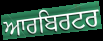
ਆਰਬਿਰਟਰ